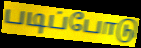
படிப்போடு